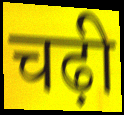
चढ़ी